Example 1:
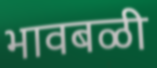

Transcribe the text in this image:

भावबळी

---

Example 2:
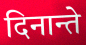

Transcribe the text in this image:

दिनान्ते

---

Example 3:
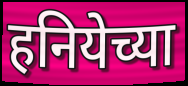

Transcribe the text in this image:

हनियेच्या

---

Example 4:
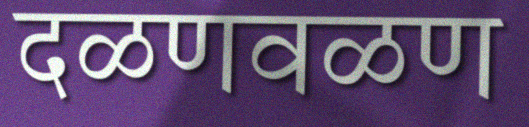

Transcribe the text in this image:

दळणवळण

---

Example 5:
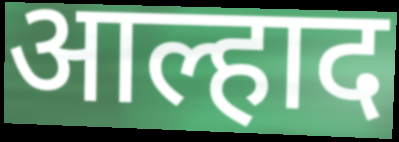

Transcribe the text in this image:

आल्हाद